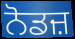
ਨੋਡਜ਼